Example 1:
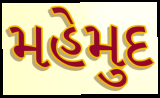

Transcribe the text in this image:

મહેમુદ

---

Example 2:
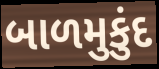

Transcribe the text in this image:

બાળમુકુંદ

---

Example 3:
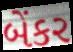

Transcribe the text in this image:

બેંકર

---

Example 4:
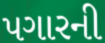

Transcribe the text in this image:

પગારની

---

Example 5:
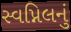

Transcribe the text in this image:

સ્વપ્નિલનું